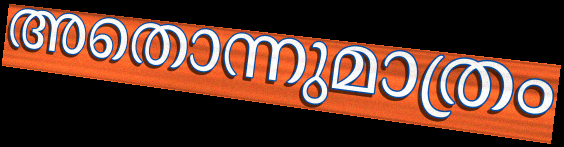
അതൊന്നുമാത്രം